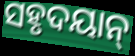
ସହୃଦୟାନ୍